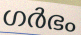
ഗർഭം